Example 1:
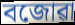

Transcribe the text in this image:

বজোৱা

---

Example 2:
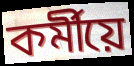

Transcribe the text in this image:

কৰ্মীয়ে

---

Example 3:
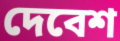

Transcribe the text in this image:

দেবেশ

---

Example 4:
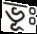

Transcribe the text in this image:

ভূঃ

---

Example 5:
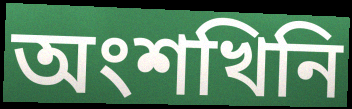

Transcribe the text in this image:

অংশখিনি